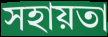
সহায়তা